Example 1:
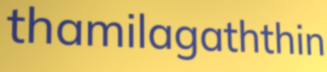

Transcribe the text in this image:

thamilagaththin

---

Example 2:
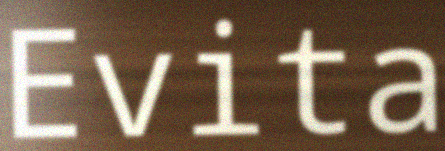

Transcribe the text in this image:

Evita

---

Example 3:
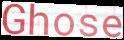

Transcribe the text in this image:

Ghose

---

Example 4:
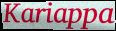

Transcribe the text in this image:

Kariappa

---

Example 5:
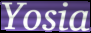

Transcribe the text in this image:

Yosia